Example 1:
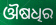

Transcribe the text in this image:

ଔଷଧିର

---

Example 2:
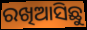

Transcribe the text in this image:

ରଖିଆସିଛୁ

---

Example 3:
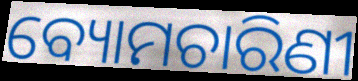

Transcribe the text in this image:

ବ୍ୟୋମଚାରିଣୀ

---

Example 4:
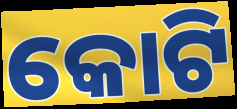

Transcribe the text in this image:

କୋଟି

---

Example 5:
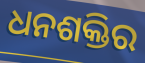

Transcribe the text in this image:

ଧନଶକ୍ତିର